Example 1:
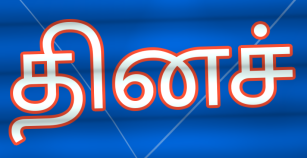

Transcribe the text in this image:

தினச்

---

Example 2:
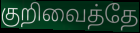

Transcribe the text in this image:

குறிவைத்தே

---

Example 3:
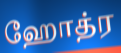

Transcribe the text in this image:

ஹோத்ர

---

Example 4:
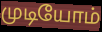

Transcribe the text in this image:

முடியோம்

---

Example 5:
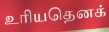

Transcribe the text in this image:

உரியதெனக்